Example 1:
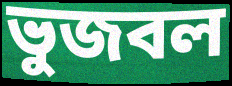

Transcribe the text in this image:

ভুজবল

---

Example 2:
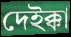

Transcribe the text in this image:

দেইক্কা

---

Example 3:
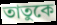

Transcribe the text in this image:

তাতুকে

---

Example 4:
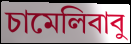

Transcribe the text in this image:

চামেলিবাবু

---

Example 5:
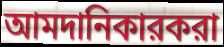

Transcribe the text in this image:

আমদানিকারকরা